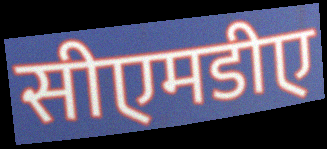
सीएमडीए